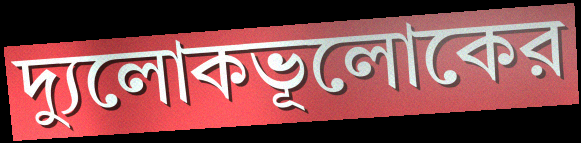
দ্যুলোকভূলোকের